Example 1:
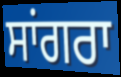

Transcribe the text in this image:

ਸਾਂਗਰਾ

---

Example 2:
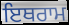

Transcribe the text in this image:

ਇਥਰਾਮ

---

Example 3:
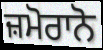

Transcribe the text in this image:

ਜ਼ਮੋਰਾਨੋ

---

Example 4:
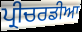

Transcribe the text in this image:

ਪ੍ਰੀਚਰਡੀਆ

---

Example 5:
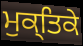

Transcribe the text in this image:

ਮੁਕ੍ਤਿਕੇ